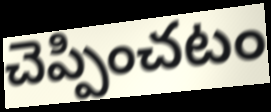
చెప్పించటం